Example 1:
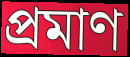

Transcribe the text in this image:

প্ৰমাণ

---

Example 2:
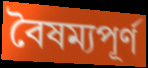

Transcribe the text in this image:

বৈষম্যপূৰ্ণ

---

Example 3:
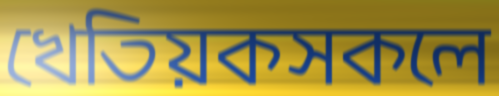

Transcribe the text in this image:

খেতিয়কসকলে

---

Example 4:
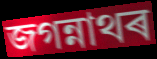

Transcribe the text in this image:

জগন্নাথৰ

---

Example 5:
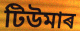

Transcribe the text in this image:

টিউমাৰ